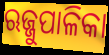
ଋଜ୍ଜୁପାଳିକା